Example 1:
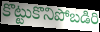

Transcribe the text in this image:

కొట్టుకొనిపోబడిరి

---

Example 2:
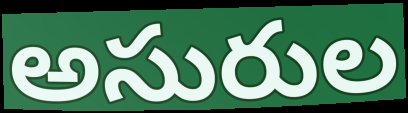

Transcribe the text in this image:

అసురుల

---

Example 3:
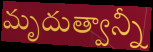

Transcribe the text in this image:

మృదుత్వాన్నీ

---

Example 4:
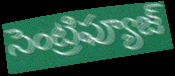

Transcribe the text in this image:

సెంట్రిఫ్యూజ్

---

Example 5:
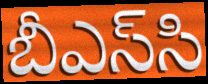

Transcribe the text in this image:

బీఎస్‌సి